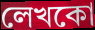
লেখকো